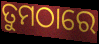
ତୁମଠାରେ